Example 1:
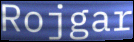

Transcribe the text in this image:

Rojgar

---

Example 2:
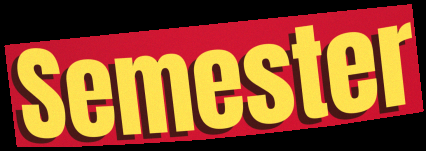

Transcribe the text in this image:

Semester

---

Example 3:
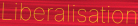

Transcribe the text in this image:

Liberalisation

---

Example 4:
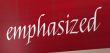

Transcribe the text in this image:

emphasized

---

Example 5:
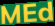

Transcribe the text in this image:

MEd